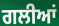
ਗਲੀਆਂ